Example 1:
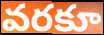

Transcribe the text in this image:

వరకూ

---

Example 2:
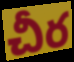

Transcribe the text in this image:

చీర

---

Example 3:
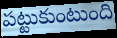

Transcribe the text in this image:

పట్టుకుంటుంది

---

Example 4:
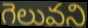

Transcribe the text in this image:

గెలువని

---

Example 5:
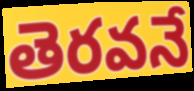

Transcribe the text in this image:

తెరవనే